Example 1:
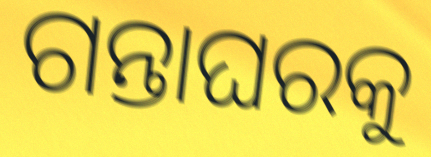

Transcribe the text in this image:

ଗନ୍ତାଘରକୁ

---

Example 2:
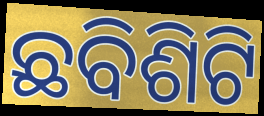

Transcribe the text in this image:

ଛବିଶିଟି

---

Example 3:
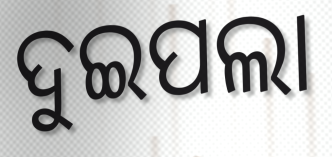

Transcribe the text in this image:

ଦୁଇପଲା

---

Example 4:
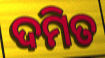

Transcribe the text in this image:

ଦମିତ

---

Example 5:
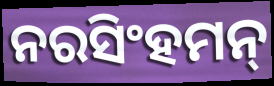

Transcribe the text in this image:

ନରସିଂହମନ୍